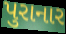
પુરાનાર